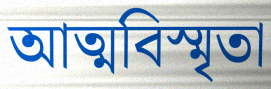
আত্মবিস্মৃতা